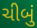
ચીબું